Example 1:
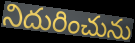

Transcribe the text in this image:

నిదురించును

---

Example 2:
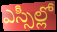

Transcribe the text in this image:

ఎస్సీల్లో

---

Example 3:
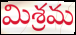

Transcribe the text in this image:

మిశ్రమ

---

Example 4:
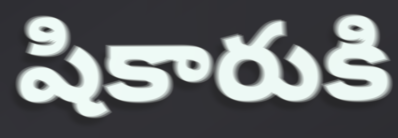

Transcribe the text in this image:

షికారుకి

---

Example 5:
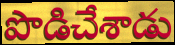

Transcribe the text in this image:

పొడిచేశాడు